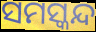
ସମସ୍କନ୍ଦ